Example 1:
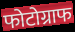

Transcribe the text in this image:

फोटोग्राफ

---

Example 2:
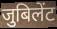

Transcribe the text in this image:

जुबिलेंट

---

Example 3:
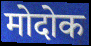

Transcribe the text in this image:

मोदोक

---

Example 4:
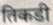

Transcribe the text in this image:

तिकडी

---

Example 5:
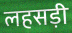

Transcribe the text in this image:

लहसड़ी